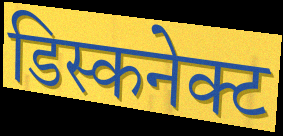
डिस्कनेक्ट